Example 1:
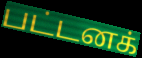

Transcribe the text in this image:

பட்டனக்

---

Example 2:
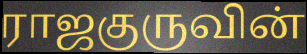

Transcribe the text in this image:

ராஜகுருவின்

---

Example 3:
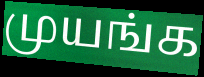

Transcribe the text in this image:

முயங்க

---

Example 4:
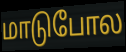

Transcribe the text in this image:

மாடுபோல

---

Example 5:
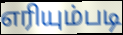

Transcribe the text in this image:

எரியும்படி